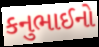
કનુભાઈનો